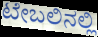
ಟೇಬಲಿನಲ್ಲಿ